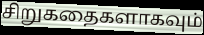
சிறுகதைகளாகவும்